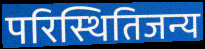
परिस्थितिजन्य